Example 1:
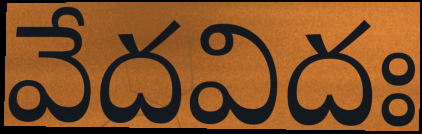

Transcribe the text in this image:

వేదవిదః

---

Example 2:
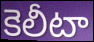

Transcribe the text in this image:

కెలీటా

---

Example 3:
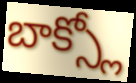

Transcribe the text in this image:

బాక్స్లో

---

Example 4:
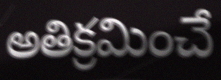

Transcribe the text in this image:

అతిక్రమించే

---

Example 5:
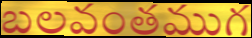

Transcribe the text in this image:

బలవంతముగ